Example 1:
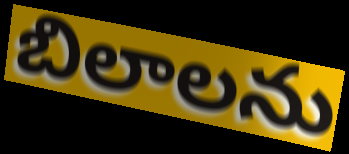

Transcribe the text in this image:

బిలాలను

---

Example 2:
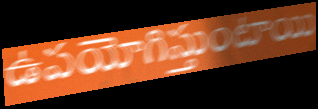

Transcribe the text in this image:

ఉపయోగిస్తుంటాయి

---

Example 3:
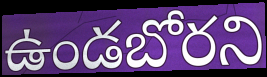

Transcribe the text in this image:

ఉండబోరని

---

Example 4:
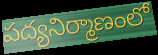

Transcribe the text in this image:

పద్యనిర్మాణంలో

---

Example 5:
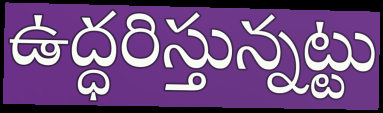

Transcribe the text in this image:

ఉద్ధరిస్తున్నట్టు